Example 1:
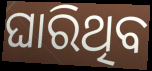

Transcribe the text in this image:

ଘାରିଥିବ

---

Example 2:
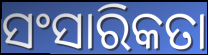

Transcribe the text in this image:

ସଂସାରିକତା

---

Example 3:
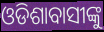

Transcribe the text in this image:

ଓଡିଶାବାସୀଙ୍କୁ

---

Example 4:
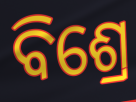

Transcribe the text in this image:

ବିଶ୍ରେ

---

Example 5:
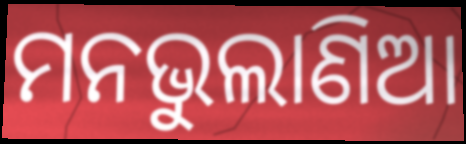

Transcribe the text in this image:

ମନଭୁଲାଣିଆ